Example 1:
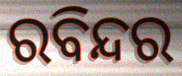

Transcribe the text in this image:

ରବିନ୍ଦର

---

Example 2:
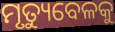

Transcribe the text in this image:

ମୃତ୍ୟୁବେଳକୁ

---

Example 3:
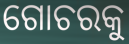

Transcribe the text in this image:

ଗୋଚରକୁ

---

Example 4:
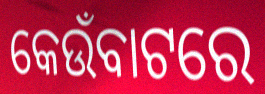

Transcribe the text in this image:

କେଉଁବାଟରେ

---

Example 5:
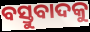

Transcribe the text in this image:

ବସ୍ତୁବାଦକୁ